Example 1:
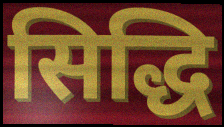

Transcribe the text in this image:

सिद्धि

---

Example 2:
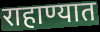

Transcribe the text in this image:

राहाण्यात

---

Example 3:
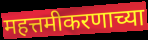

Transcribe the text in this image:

महत्तमीकरणाच्या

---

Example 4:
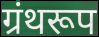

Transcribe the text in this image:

ग्रंथरूप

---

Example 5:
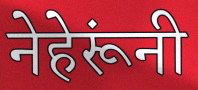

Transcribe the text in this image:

नेहेरूंनी